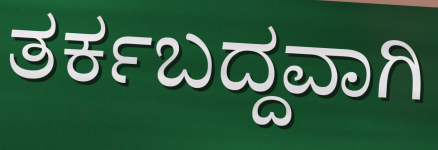
ತರ್ಕಬದ್ದವಾಗಿ